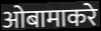
ओबामाकरे